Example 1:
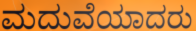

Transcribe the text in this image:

ಮದುವೆಯಾದರು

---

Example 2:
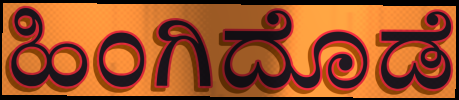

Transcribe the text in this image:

ಹಿಂಗಿದೊಡೆ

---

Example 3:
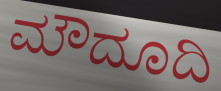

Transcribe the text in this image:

ಮೌದೂದಿ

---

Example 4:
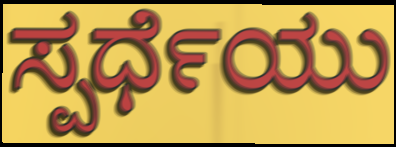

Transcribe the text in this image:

ಸ್ಪರ್ಧೆಯು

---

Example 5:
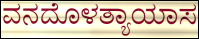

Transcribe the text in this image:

ವನದೊಳತ್ಯಾಯಾಸ